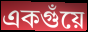
একগুঁয়ে